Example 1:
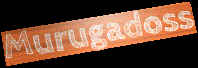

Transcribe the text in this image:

Murugadoss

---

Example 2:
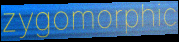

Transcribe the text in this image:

zygomorphic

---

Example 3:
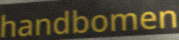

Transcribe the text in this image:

handbomen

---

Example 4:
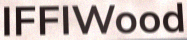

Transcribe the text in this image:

IFFIWood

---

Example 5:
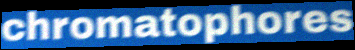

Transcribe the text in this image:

chromatophores